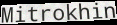
Mitrokhin